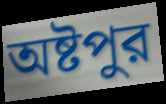
অষ্টপুর